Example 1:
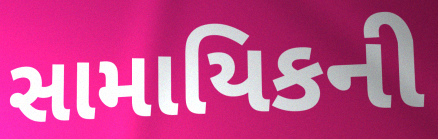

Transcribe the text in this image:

સામાયિકની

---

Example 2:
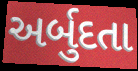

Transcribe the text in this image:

અર્બુદતા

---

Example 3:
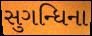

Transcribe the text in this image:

સુગન્ધિના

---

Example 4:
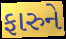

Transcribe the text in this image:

ફારુને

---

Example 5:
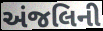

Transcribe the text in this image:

અંજલિની